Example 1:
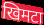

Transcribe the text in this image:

खिमटा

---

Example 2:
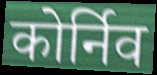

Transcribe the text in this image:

कोर्निव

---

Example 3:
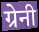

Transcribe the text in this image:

ग्रेनी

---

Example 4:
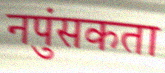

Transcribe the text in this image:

नपुंसकता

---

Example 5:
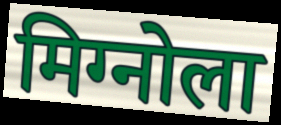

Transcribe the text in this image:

मिग्नोला